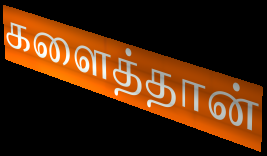
களைத்தான்